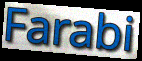
Farabi